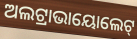
ଅଲଟ୍ରାଭାୟୋଲେଟ୍